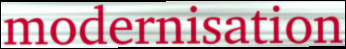
modernisation